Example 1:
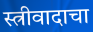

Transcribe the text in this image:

स्त्रीवादाचा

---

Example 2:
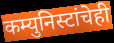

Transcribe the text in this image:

कम्युनिस्टांचेही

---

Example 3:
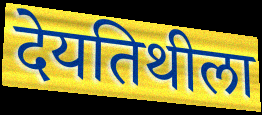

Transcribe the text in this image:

देयतिथीला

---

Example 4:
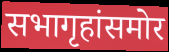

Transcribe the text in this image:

सभागृहांसमोर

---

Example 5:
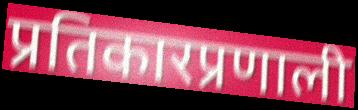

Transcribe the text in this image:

प्रतिकारप्रणाली